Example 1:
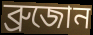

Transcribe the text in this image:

ব্রুজোন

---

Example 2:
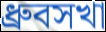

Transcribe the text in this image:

ধ্রুবসখা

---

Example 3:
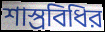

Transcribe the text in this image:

শাস্ত্রবিধির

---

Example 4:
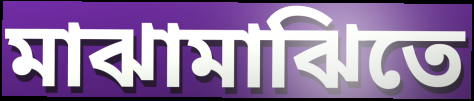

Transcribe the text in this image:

মাঝামাঝিতে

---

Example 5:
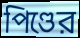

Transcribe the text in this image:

পিণ্ডের